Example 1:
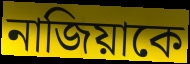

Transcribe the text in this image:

নাজিয়াকে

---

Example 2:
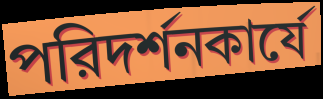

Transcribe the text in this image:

পরিদর্শনকার্যে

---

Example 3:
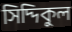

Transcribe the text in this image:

সিদ্দিকুল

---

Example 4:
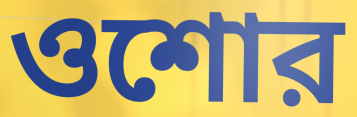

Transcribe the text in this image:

ওশোর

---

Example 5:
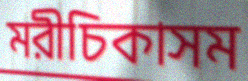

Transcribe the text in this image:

মরীচিকাসম